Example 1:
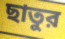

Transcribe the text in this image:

ছাতুর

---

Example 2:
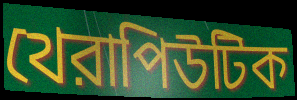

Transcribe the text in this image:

থেরাপিউটিক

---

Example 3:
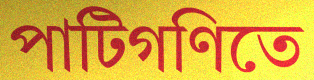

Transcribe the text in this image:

পাটিগণিতে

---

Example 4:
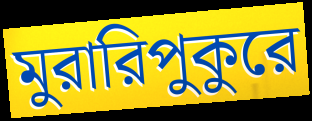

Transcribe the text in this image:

মুরারিপুকুরে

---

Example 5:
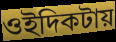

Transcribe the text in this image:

ওইদিকটায়